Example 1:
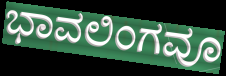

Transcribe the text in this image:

ಭಾವಲಿಂಗವೂ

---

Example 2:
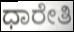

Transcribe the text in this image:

ಧಾರೇತಿ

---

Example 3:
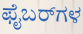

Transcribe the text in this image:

ಫೈಬರ್‌ಗಳ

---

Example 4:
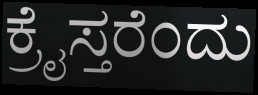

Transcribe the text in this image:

ಕ್ರೈಸ್ತರೆಂದು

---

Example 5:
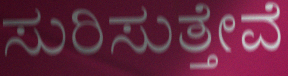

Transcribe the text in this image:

ಸುರಿಸುತ್ತೇವೆ